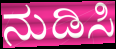
ನುಡಿಸಿ